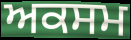
ਅਕਸਮ